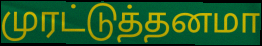
முரட்டுத்தனமா